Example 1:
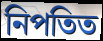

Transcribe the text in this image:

নিপতিত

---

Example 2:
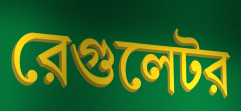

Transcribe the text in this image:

রেগুলেটর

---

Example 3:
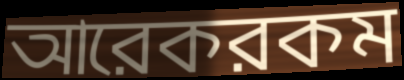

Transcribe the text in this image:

আরেকরকম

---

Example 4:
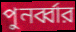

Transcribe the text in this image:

পুনর্ব্বার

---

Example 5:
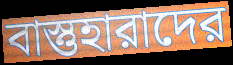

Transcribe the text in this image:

বাস্তুহারাদের